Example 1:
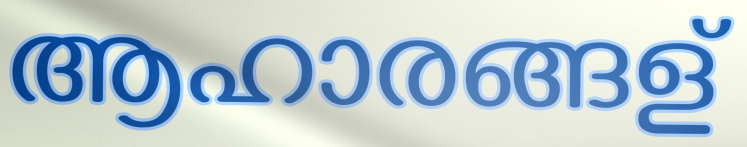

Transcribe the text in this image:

ആഹാരങ്ങള്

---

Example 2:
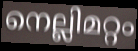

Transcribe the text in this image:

നെല്ലിമറ്റം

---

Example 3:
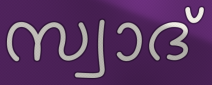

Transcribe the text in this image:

സ്വാദ്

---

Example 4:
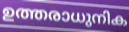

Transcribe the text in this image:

ഉത്തരാധുനിക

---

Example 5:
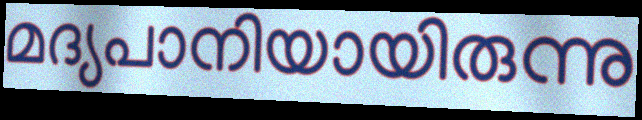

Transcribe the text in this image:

മദ്യപാനിയായിരുന്നു